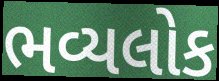
ભવ્યલોક